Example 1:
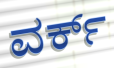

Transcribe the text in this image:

ವರ್ಕ್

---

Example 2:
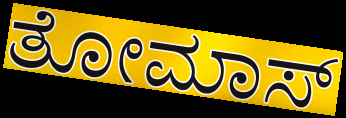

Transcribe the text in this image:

ತೋಮಾಸ್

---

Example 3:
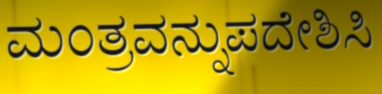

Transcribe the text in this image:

ಮಂತ್ರವನ್ನುಪದೇಶಿಸಿ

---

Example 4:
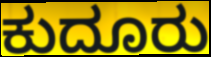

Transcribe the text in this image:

ಕುದೂರು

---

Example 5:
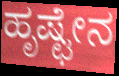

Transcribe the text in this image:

ಹೃಷ್ಟೇನ